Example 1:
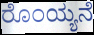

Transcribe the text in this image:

ರೊಂಯ್ಯನೆ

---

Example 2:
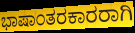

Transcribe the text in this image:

ಭಾಷಾಂತರಕಾರರಾಗಿ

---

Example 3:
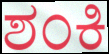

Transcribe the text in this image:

ಶಂಕಿ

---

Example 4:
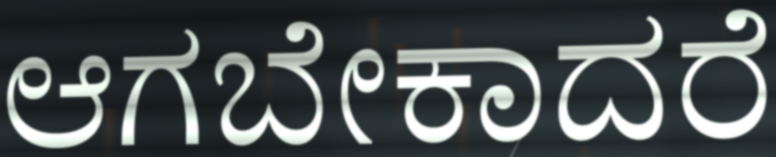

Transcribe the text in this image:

ಆಗಬೇಕಾದರೆ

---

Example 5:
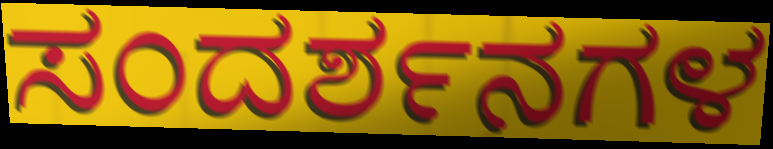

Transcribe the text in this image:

ಸಂದರ್ಶನಗಳ